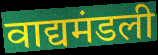
वाद्यमंडली